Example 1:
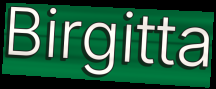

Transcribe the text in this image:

Birgitta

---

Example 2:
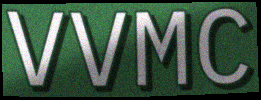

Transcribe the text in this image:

VVMC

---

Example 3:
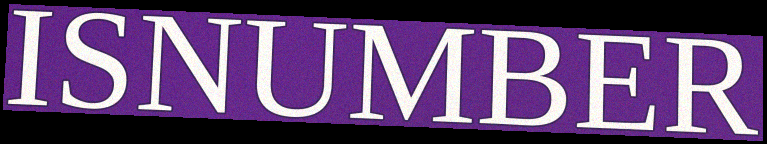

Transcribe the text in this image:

ISNUMBER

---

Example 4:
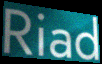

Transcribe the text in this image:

Riad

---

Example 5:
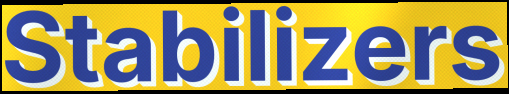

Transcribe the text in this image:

Stabilizers